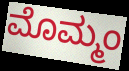
ಮೊಮ್ಮಂ